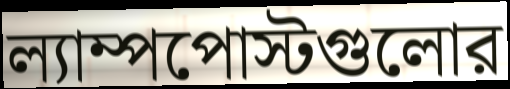
ল্যাম্পপোস্টগুলোর